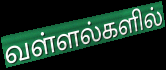
வள்ளல்களில்